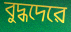
বুদ্ধদেৱে